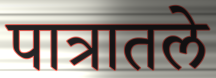
पात्रातले